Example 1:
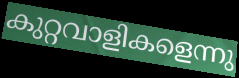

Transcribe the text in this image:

കുറ്റവാളികളെന്നു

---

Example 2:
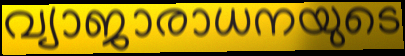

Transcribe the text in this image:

വ്യാജാരാധനയുടെ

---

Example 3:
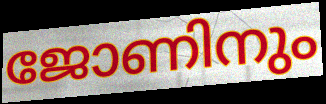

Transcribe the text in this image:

ജോണിനും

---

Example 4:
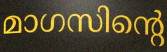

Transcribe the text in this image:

മാഗസിന്റെ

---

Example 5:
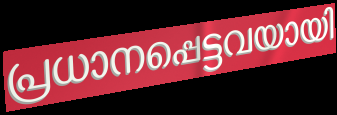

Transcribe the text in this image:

പ്രധാനപ്പെട്ടവയായി